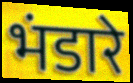
भंडारे